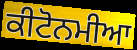
ਕੀਟੋਨਮੀਆ